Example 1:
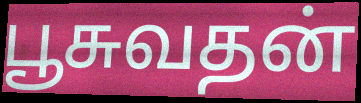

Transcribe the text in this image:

பூசுவதன்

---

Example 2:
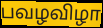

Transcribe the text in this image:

பவழவிழா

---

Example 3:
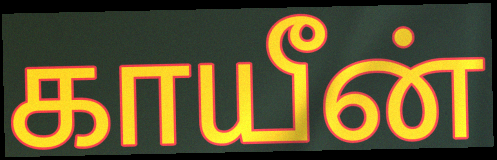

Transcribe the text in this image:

காயீன்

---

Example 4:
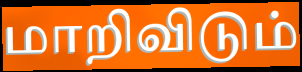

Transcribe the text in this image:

மாறிவிடும்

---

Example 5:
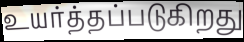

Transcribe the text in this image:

உயர்த்தப்படுகிறது